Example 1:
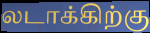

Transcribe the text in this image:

லடாக்கிற்கு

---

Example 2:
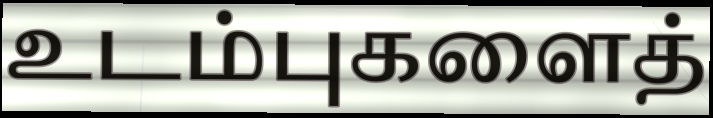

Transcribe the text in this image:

உடம்புகளைத்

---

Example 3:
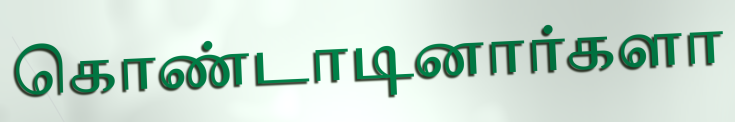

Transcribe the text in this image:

கொண்டாடினார்களா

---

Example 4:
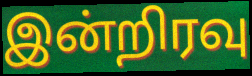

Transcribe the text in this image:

இன்றிரவு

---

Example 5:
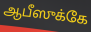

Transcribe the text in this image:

ஆபீஸுக்கே